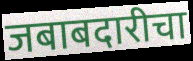
जबाबदारीचा